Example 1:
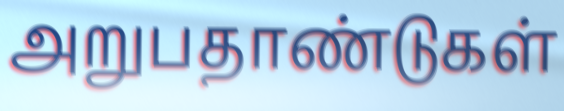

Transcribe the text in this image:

அறுபதாண்டுகள்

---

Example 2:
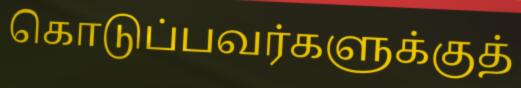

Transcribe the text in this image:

கொடுப்பவர்களுக்குத்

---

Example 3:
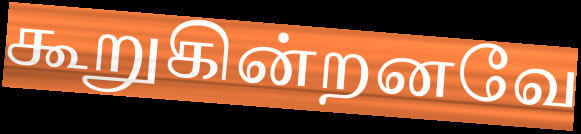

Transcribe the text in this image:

கூறுகின்றனவே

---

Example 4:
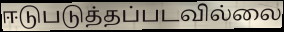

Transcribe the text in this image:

ஈடுபடுத்தப்படவில்லை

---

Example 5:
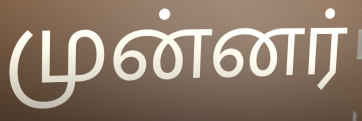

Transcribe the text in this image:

முன்னர்